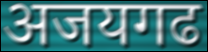
अजयगढ